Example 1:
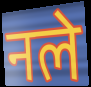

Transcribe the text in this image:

नले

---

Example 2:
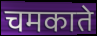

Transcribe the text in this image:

चमकाते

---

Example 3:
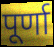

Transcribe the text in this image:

पूर्णा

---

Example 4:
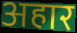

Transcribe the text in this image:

अहार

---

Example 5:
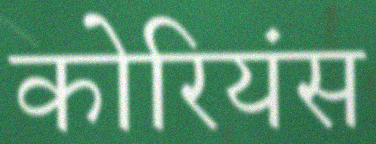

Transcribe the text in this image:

कोरियंस